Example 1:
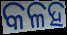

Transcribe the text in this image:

କଳହ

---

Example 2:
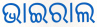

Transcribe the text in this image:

ଭାଇରାଲ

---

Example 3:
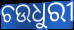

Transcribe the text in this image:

ଚଉଧୁରୀ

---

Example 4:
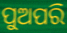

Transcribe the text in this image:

ପୁଅପରି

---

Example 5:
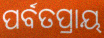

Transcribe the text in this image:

ପର୍ବତପ୍ରାୟ